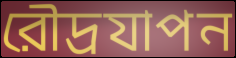
রৌদ্রযাপন